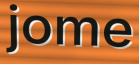
jome